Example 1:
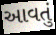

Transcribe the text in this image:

આવતું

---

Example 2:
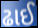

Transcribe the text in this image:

ઢાઈ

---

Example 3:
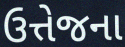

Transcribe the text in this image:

ઉત્તેજના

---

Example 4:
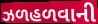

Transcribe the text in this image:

ઝળહળવાની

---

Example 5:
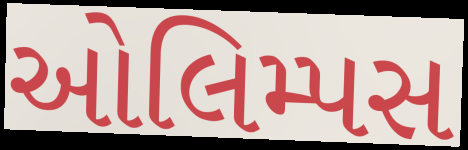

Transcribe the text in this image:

ઓલિમ્પસ